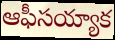
ఆఫీసయ్యాక